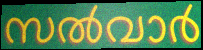
സൽവാർ